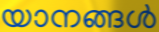
യാനങ്ങൾ